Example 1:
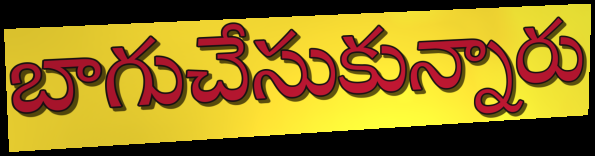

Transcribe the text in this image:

బాగుచేసుకున్నారు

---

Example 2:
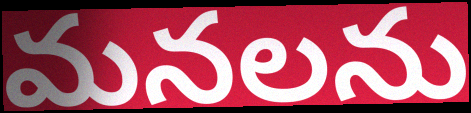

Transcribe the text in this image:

మనలను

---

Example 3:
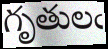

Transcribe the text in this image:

గృతులఁ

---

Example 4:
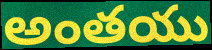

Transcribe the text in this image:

అంతయు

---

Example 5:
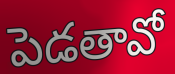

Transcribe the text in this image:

పెడతావో